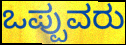
ಒಪ್ಪುವರು